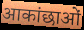
आकांछाओं